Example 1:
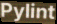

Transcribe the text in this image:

Pylint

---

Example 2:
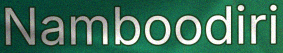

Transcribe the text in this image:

Namboodiri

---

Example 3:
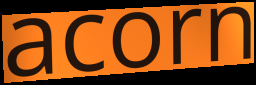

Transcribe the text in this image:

acorn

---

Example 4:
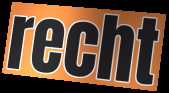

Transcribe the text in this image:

recht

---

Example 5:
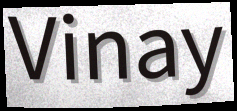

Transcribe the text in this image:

Vinay